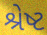
શ્રેષ્ટ